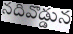
నదివొడ్డున